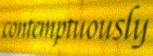
contemptuously